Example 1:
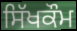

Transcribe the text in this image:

ਸਿੱਖਕੌਮ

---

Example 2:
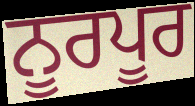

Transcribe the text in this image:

ਨੂਰਪੂਰ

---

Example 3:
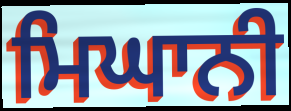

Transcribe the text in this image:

ਮਿਘਾਨੀ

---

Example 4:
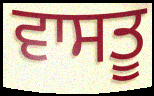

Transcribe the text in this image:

ਵਾਸਤੂ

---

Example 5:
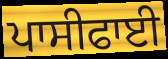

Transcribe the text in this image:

ਪਾਸੀਫਾਈ